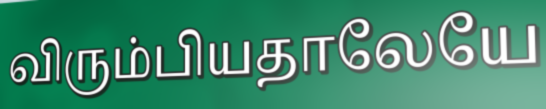
விரும்பியதாலேயே